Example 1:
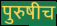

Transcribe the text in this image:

पुरुषीच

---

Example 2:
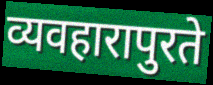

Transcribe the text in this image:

व्यवहारापुरते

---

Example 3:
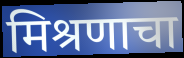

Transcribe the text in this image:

मिश्रणाचा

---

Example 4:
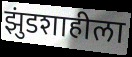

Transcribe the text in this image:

झुंडशाहीला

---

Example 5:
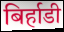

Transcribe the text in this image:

बिर्हाडी